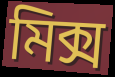
মিক্স